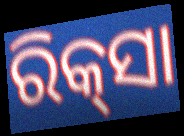
ରିକ୍‌ସା